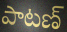
పాటణ్